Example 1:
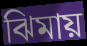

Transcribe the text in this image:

ঝিমায়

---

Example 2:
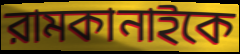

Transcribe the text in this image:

রামকানাইকে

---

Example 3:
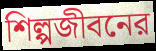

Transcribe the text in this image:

শিল্পজীবনের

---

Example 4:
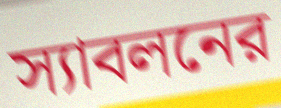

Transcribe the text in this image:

স্যাবলনের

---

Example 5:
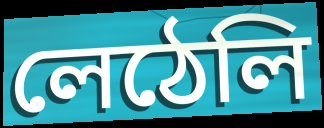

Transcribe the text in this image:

লেঠেলি